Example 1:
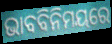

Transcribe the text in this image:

ଭାବବିନିମୟରେ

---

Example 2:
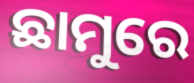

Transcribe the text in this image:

ଛାମୁରେ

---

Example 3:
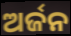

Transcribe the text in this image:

ଅର୍ଜନ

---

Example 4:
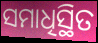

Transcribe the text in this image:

ସମାଧିସ୍ଥିତ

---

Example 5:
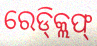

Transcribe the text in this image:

ରେଡ୍କ୍ଲିଫ୍